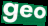
geo